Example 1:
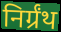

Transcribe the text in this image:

निर्ग्रंथ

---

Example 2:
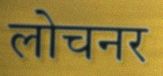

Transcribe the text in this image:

लोचनर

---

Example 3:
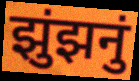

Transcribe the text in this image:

झुंझनुं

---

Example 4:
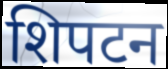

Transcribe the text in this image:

शिपटन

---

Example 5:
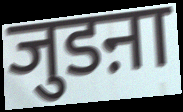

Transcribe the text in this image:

जुडऩा